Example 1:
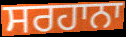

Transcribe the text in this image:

ਸਰਹਾਨਾ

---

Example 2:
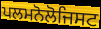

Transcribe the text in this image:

ਪਲਮਨੋਲੋਜਿਸਟ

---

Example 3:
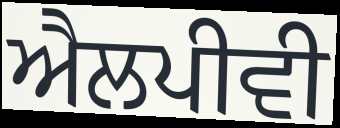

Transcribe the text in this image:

ਐਲਪੀਵੀ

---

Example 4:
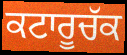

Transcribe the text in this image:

ਕਟਾਰੂਚੱਕ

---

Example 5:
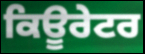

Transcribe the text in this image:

ਕਿਊਰੇਟਰ